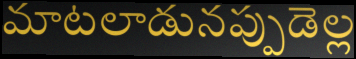
మాటలాడునప్పుడెల్ల